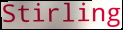
Stirling